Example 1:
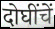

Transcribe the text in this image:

दोघींचें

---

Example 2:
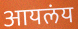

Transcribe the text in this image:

आयलंय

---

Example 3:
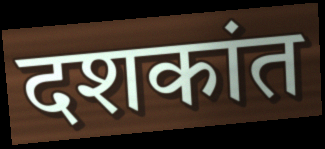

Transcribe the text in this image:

दशकांत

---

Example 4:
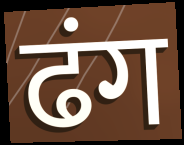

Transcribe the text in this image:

ढंग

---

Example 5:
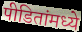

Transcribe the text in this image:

पीडितांमध्ये